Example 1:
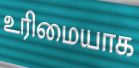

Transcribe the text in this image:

உரிமையாக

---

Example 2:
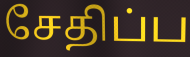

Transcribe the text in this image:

சேதிப்ப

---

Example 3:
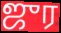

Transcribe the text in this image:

ஜுர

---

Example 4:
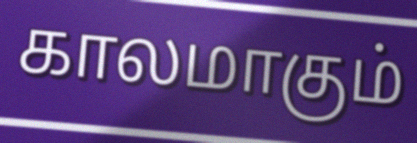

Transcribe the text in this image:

காலமாகும்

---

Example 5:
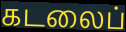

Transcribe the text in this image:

கடலைப்